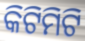
କିଟିମିଟି